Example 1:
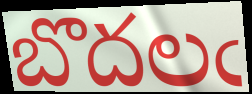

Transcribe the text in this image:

బొదలఁ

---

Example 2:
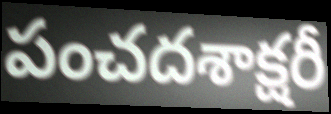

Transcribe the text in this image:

పంచదశాక్షరీ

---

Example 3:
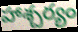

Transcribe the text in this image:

హాశ్చర్యం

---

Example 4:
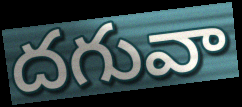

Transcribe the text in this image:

దగువా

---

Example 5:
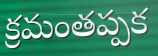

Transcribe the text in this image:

క్రమంతప్పక